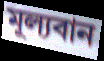
মূল্যবান